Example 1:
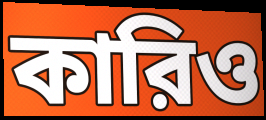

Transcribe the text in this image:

কারিও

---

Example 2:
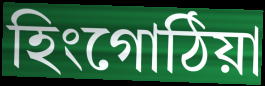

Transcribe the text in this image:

হিংগোঠিয়া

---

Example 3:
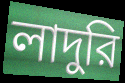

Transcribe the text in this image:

লাদুরি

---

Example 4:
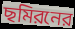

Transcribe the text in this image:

ছমিরনের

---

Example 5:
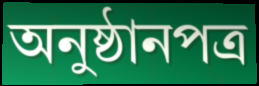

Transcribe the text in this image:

অনুষ্ঠানপত্র